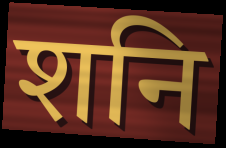
शनि